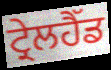
ਟ੍ਰੇਲਹੈੱਡ